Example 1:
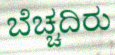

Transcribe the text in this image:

ಬೆಚ್ಚದಿರು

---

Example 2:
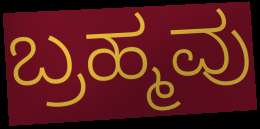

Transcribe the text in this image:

ಬ್ರಹ್ಮವು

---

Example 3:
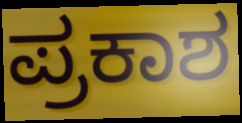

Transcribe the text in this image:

ಪ್ರಕಾಶ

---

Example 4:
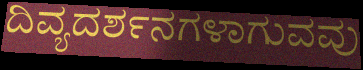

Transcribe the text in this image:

ದಿವ್ಯದರ್ಶನಗಳಾಗುವವು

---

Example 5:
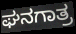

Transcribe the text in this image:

ಘನಗಾತ್ರ